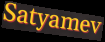
Satyamev